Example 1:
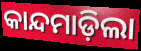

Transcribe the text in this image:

କାନ୍ଦମାଡ଼ିଲା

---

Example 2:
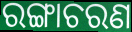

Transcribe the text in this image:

ରଙ୍ଗାଚରଣ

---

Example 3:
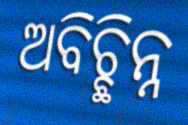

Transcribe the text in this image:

ଅବିଚ୍ଛିନ୍ନ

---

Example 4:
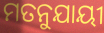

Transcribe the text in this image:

ମତନୁଯାୟୀ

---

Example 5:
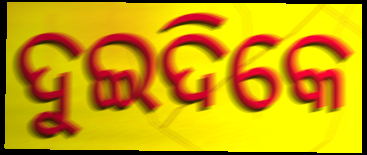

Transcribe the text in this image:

ଦୁଇଦିକେ